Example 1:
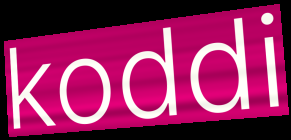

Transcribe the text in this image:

koddi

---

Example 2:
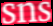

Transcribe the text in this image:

sns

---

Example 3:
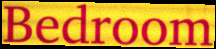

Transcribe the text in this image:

Bedroom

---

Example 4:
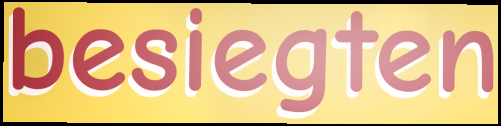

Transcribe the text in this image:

besiegten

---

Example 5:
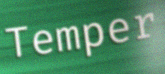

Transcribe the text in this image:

Temper